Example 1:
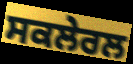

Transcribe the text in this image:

ਸਕਲੇਰਲ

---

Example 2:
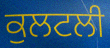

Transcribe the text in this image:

ਕੁਲਟਲੀ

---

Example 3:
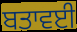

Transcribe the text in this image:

ਬਤਾਵਈ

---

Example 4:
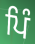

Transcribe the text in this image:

ਪਿੰ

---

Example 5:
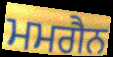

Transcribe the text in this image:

ਮਮਗੈਨ